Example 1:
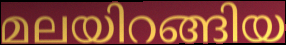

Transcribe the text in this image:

മലയിറങ്ങിയ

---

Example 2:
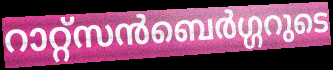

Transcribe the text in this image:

റാറ്റ്സൻബെർഗ്ഗറുടെ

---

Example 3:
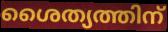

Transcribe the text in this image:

ശൈത്യത്തിന്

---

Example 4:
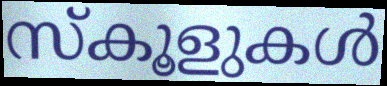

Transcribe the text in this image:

സ്കൂളുകൾ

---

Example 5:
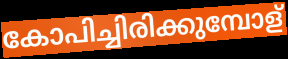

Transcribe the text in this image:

കോപിച്ചിരിക്കുമ്പോള്